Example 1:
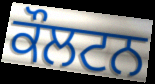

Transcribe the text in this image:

ਕੌਲਟਨ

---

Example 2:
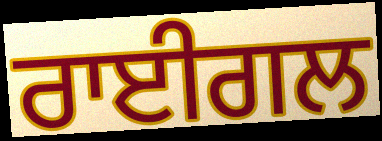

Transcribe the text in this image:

ਰਾਈਗਲ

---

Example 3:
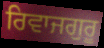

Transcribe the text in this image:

ਰਿਵਾਜਗੁਰੂ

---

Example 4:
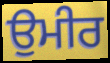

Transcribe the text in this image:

ਉਮੀਰ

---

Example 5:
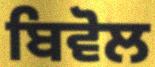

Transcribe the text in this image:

ਬਿਵੋਲ